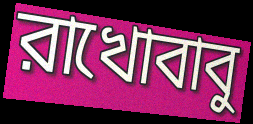
রাখোবাবু